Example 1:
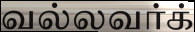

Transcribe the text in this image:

வல்லவர்க்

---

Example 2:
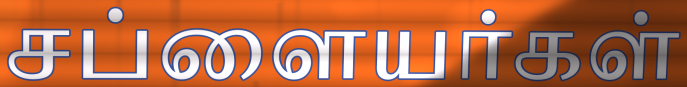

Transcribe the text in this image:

சப்ளையர்கள்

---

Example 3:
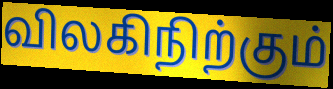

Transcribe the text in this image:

விலகிநிற்கும்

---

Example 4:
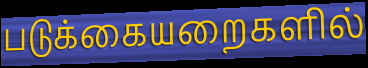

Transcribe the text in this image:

படுக்கையறைகளில்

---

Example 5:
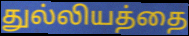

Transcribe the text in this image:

துல்லியத்தை